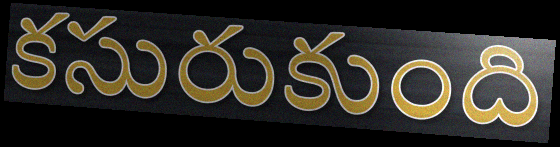
కసురుకుంది